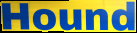
Hound